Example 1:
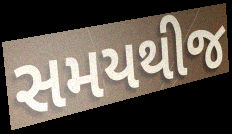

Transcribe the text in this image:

સમયથીજ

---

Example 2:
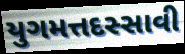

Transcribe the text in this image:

યુગમત્તદસ્સાવી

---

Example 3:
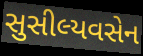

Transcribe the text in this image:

સુસીલ્યવસેન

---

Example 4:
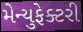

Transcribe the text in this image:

મેન્યુફેક્ટરી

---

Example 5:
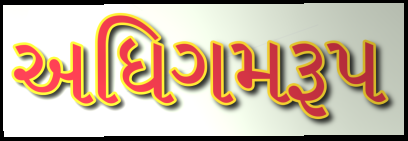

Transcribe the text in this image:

અધિગમરૂપ